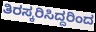
ತಿರಸ್ಕರಿಸಿದ್ದರಿಂದ